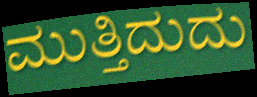
ಮುತ್ತಿದುದು